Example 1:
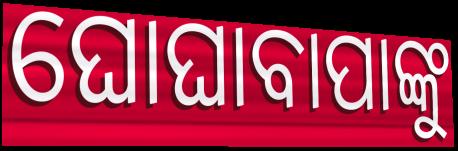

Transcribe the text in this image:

ଘୋଘାବାପାଙ୍କୁ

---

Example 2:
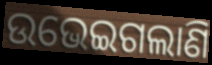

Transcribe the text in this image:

ଉଭେଇଗଲାଣି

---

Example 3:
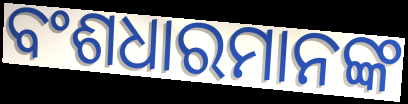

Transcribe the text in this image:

ବଂଶଧାରମାନଙ୍କ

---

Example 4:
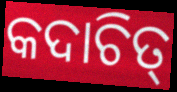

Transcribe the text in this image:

କଦାଚିତ୍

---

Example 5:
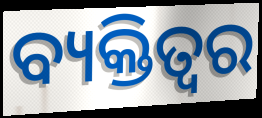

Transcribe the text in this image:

ବ୍ୟକ୍ତିତ୍ବର